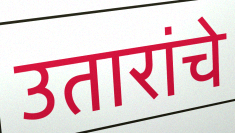
उतारांचे